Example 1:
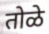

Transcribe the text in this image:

तोळे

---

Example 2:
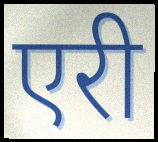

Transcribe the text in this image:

एरी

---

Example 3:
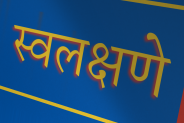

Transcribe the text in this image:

स्वलक्षणे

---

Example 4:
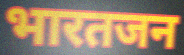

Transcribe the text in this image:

भारतजन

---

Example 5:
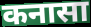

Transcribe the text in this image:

कनासा